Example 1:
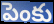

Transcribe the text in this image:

పెంకు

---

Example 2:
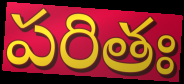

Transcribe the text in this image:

పరితః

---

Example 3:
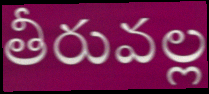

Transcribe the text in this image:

తీరువల్ల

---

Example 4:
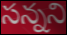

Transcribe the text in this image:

సన్నని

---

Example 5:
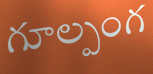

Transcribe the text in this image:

గూల్పంగ